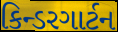
કિન્ડરગાર્ટન